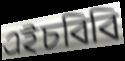
এইচবিবি